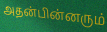
அதன்பின்னரும்